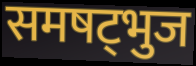
समषट्भुज